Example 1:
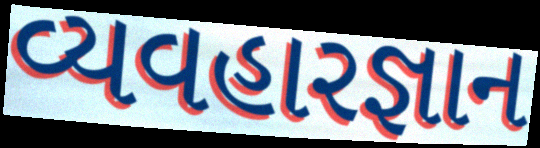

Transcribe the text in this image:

વ્યવહારજ્ઞાન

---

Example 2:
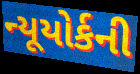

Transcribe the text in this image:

ન્યૂયોર્કની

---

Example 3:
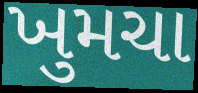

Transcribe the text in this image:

ખુમચા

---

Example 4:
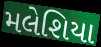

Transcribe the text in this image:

મલેશિયા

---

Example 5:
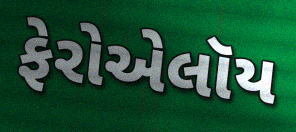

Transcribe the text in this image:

ફેરોએલૉય